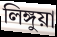
লিঙ্গুয়া